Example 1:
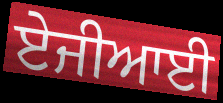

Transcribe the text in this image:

ਏਜੀਆਈ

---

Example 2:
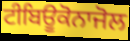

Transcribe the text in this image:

ਟੀਬਿਊਕੋਨਾਜੋਲ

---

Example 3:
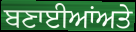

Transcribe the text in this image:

ਬਣਾਈਆਂਅਤੇ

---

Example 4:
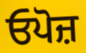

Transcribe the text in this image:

ਓਪੋਜ਼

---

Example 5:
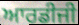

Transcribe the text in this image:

ਆਰਡੀਜੀ